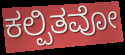
ಕಲ್ಪಿತವೋ